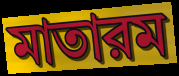
মাতারম